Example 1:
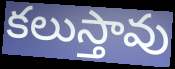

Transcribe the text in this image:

కలుస్తావు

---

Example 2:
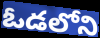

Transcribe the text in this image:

ఓడలోని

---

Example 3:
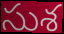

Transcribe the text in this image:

సుశ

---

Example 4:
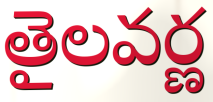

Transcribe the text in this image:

తైలవర్ణ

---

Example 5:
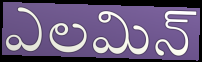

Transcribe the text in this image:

ఎలమిన్